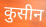
कुसीन